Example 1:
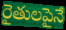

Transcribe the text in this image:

రైతులపైనే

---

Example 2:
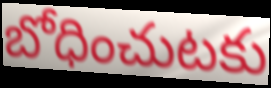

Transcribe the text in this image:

బోధించుటకు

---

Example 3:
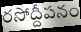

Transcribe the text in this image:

రసోద్దీపనం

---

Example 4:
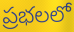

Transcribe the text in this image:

ప్రభలలో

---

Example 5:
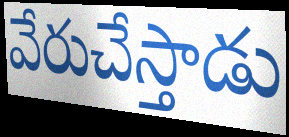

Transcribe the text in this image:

వేరుచేస్తాడు